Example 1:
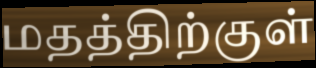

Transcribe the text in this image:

மதத்திற்குள்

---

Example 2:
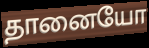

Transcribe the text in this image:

தானையோ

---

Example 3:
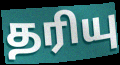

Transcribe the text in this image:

தரியு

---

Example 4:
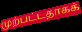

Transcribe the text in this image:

முற்பட்டதாகக்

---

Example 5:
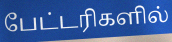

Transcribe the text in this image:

பேட்டரிகளில்